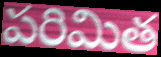
పరిమిత